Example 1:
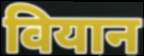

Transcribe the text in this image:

वियान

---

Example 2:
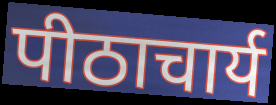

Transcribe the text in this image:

पीठाचार्य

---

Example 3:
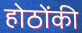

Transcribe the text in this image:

होठोंकी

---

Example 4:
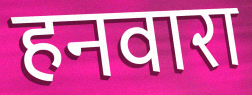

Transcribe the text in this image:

हनवारा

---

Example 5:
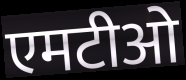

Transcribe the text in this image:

एमटीओ